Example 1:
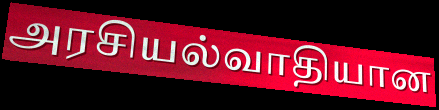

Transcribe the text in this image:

அரசியல்வாதியான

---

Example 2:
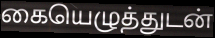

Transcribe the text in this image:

கையெழுத்துடன்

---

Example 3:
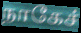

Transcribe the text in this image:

நாகேச்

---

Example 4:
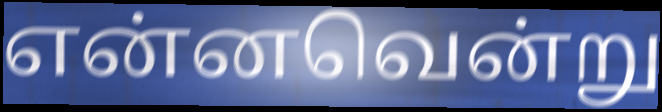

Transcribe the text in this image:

என்னவென்று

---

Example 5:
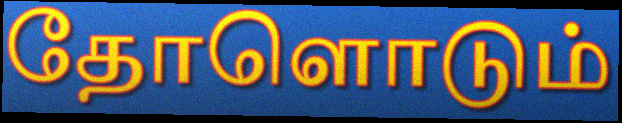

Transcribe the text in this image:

தோளொடும்